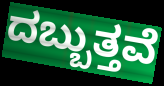
ದಬ್ಬುತ್ತವೆ